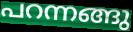
പറന്നങ്ങു